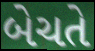
બેચતે